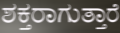
ಶಕ್ತರಾಗುತ್ತಾರೆ